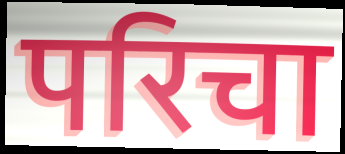
परिचा